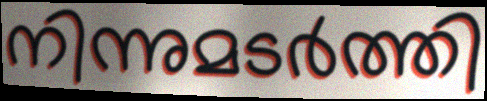
നിന്നുമടർത്തി